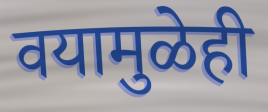
वयामुळेही